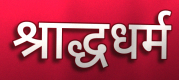
श्राद्धधर्म